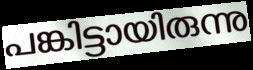
പങ്കിട്ടായിരുന്നു